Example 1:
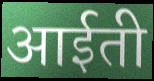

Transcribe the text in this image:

आईती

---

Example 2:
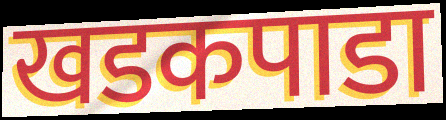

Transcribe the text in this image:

खडकपाडा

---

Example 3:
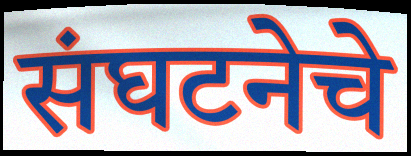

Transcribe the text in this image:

संघटनेचे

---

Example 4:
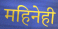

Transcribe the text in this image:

महिनेही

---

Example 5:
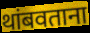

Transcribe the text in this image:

थांबवताना